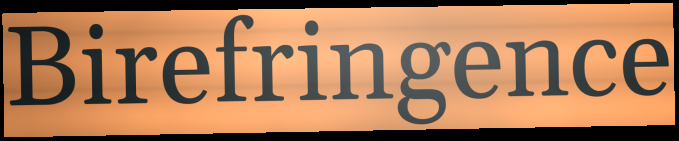
Birefringence